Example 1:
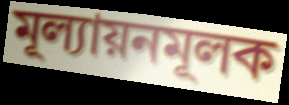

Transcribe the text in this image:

মূল্যায়নমূলক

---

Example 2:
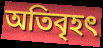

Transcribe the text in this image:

অতিবৃহৎ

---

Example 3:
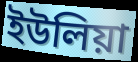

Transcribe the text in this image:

ইউলিয়া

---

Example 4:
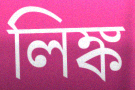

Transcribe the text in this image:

লিঙ্ক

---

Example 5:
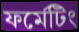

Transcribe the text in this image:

ফর্মেটিং